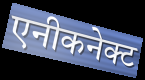
एनीकनेक्ट